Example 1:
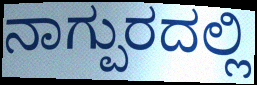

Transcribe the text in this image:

ನಾಗ್ಪುರದಲ್ಲಿ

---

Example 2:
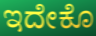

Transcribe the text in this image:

ಇದೇಕೊ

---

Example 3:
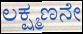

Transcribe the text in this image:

ಲಕ್ಷ್ಮಣನೇ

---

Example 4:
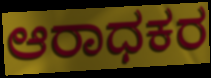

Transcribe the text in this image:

ಆರಾಧಕರ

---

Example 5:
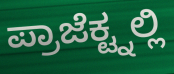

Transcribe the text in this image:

ಪ್ರಾಜೆಕ್ಟ್ನಲ್ಲಿ